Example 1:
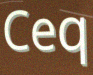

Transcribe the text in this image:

Ceq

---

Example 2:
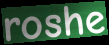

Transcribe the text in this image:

roshe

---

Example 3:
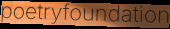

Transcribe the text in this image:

poetryfoundation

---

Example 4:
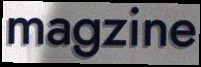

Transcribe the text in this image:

magzine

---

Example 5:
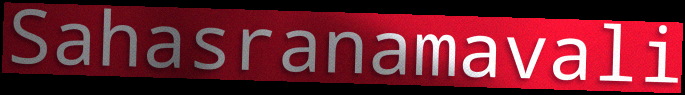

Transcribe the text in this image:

Sahasranamavali